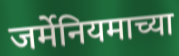
जर्मेनियमाच्या